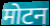
मोटन